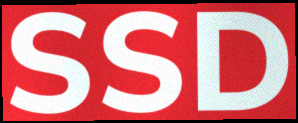
SSD